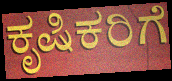
ಕೃಷಿಕರಿಗೆ